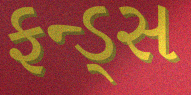
ફન્ડ્સ